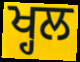
ਖ੍ਹਲ